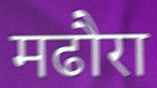
मढौरा